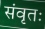
संवृतः